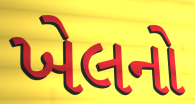
ખેલનો